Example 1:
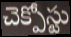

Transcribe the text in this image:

చెక్పోస్టు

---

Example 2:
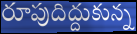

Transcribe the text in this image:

రూపుదిద్దుకున్న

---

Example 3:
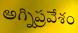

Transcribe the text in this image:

అగ్నిప్రవేశం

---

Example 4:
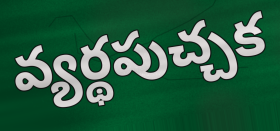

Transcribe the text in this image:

వ్యర్థపుచ్చక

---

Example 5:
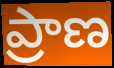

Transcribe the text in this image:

ప్రాణ